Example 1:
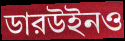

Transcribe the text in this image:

ডারউইনও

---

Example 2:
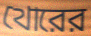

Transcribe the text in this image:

থোরের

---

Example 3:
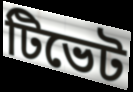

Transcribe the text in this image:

টিভেট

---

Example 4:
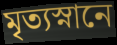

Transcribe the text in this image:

মৃত্যস্নানে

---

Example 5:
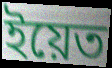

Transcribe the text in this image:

ইয়েত